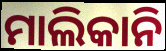
ମାଲିକାନି